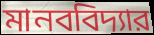
মানববিদ্যার